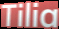
Tilia